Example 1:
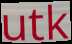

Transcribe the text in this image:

utk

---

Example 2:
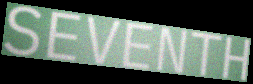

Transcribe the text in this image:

SEVENTH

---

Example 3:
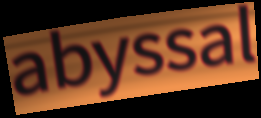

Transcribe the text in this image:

abyssal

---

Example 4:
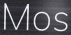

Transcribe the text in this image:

Mos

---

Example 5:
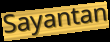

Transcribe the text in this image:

Sayantan